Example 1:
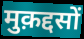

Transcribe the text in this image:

मुक़द्दसों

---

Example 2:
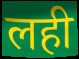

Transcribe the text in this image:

लही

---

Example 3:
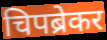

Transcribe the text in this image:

चिपब्रेकर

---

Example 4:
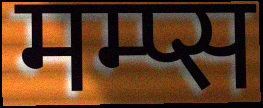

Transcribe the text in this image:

मम्प्स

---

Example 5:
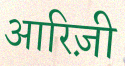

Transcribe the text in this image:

आरिज़ी